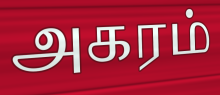
அகரம்